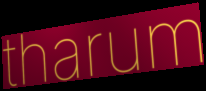
tharum